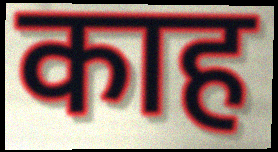
काह